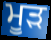
ਮੂੜ